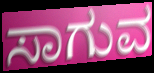
ಸಾಗುವ